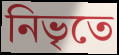
নিভৃতে